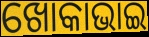
ଖୋକାଭାଇ